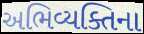
અભિવ્યક્તિના